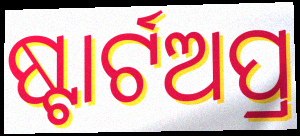
ଷ୍ଟାର୍ଟଅପ୍ର